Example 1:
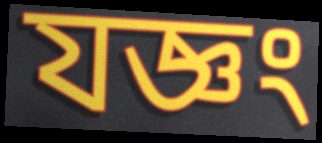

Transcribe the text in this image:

যজ্ঞং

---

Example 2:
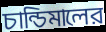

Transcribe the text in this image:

চান্ডিমালের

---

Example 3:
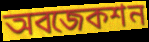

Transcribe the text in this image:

অবজেকশন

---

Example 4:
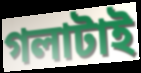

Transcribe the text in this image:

গলাটাই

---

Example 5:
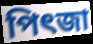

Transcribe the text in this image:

পিৎজা